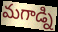
మగాడ్ని